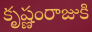
కృష్ణంరాజుకి